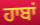
ਹਾਬਾਂ